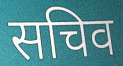
सचिव